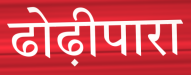
ढोढ़ीपारा